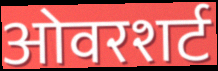
ओवरशर्ट